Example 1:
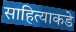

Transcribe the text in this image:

साहित्याकडे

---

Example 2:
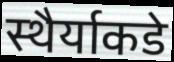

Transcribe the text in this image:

स्थैर्याकडे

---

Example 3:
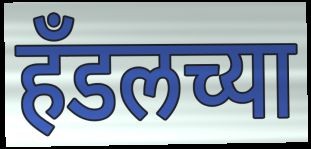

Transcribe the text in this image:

हॅंडलच्या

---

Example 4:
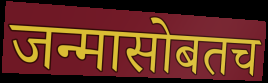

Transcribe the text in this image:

जन्मासोबतच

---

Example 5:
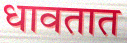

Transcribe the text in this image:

धावतात